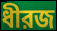
ধীরজ